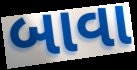
બાવા